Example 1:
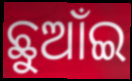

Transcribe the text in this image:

ଛୁଆଁଇ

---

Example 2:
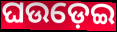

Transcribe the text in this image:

ଘଉଡ଼େଇ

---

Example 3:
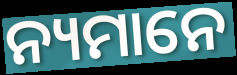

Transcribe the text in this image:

ନ୍ୟମାନେ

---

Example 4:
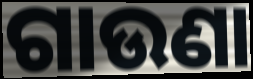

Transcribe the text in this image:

ଗାଉଣା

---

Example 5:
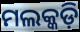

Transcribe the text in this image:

ମଲକ୍କଡ଼ି